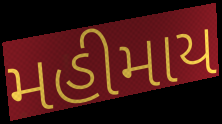
મહીમાય